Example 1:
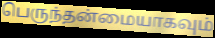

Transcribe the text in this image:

பெருந்தன்மையாகவும்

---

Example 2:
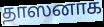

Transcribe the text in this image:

தாஸனாக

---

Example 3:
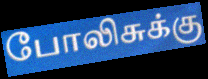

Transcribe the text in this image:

போலிசுக்கு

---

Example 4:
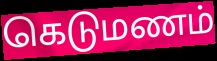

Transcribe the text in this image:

கெடுமணம்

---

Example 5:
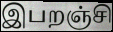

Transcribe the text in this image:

இபறஞ்சி